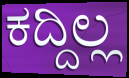
ಕದ್ದಿಲ್ಲ